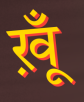
ख़ूँ